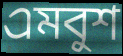
এমবুশ